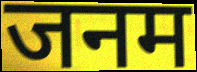
जनम